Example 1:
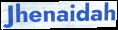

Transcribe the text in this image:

Jhenaidah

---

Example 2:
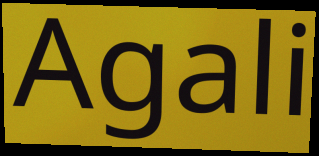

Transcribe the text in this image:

Agali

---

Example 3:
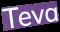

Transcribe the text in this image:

Teva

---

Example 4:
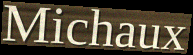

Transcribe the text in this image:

Michaux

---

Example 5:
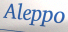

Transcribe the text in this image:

Aleppo